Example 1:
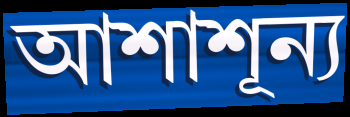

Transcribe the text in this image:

আশাশূন্য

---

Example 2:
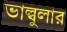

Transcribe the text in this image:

ভাল্বুলার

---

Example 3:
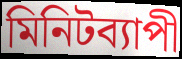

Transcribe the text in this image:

মিনিটব্যাপী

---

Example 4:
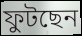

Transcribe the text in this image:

ফুটছেন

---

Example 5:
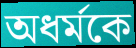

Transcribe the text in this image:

অধর্মকে